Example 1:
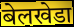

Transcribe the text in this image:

बेलखेडा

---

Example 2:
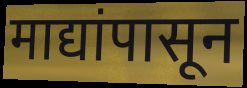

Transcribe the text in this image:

माद्यांपासून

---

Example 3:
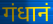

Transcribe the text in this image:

गंधानं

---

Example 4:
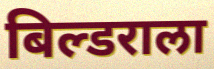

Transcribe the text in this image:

बिल्डराला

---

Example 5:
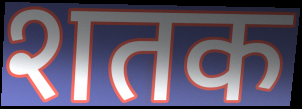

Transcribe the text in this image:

शतक